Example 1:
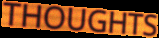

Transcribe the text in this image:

THOUGHTS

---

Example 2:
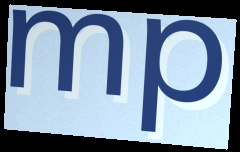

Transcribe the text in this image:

mp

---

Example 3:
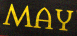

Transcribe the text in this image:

MAY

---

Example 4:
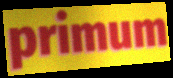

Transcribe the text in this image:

primum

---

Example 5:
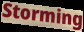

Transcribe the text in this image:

Storming